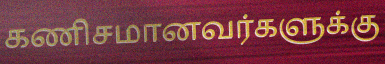
கணிசமானவர்களுக்கு